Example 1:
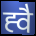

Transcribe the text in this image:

ह्वै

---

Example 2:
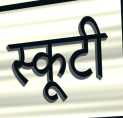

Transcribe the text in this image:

स्कूटी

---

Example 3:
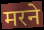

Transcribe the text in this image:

मरने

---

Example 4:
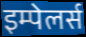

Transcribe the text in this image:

इम्पेलर्स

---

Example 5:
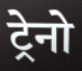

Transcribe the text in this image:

ट्रेनो